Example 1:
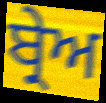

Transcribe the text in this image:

ਬ੍ਰੇਅ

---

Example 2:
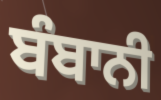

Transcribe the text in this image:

ਬੰਬਾਨੀ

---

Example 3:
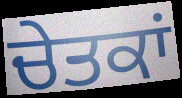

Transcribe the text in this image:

ਚੇਤਕਾਂ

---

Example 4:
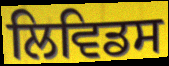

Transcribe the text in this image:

ਲਿਵਿਡਸ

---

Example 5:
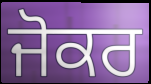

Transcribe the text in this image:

ਜੋਕਰ